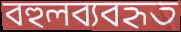
বহুলব্যবহৃত